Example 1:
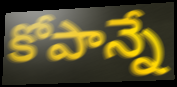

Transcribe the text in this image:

కోపాన్నే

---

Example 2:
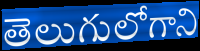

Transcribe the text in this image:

తెలుగులోగాని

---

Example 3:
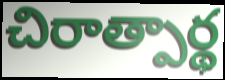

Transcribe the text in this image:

చిరాత్పార్థ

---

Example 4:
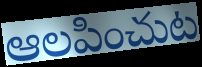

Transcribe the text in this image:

ఆలపించుట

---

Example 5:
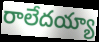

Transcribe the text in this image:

రాలేదయ్యా